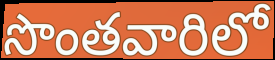
సొంతవారిలో